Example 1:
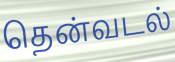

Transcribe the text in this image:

தென்வடல்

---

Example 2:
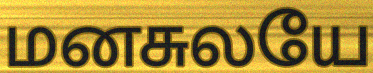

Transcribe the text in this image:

மனசுலயே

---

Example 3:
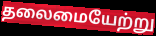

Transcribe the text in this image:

தலைமையேற்று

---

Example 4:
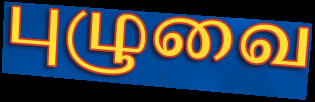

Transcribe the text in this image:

புழுவை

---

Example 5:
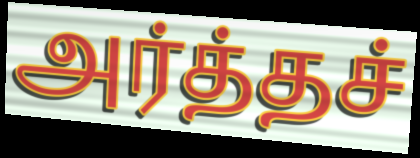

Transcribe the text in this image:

அர்த்தச்